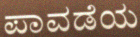
ಪಾವಡೆಯ